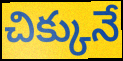
చిక్కునే